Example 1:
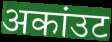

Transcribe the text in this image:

अकांउट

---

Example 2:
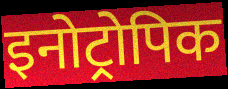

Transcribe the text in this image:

इनोट्रोपिक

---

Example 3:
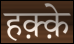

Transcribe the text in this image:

हक़्क़े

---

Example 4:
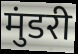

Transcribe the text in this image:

मुंडरी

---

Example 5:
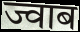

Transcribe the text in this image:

ज्वाब